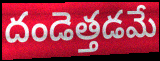
దండెత్తడమే